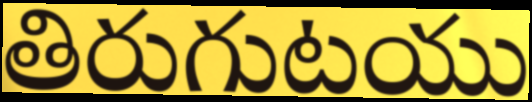
తిరుగుటయు